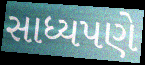
સાધ્યપણે